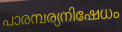
പാരമ്പര്യനിഷേധം